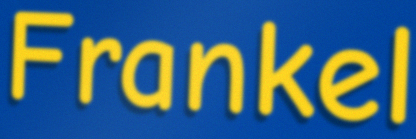
Frankel